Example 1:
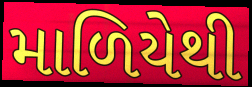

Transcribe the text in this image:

માળિયેથી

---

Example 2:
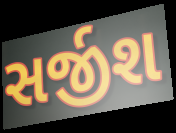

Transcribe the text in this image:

સર્જીશ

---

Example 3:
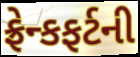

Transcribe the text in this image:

ફ્રેન્કફર્ટની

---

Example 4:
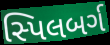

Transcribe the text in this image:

સ્પિલબર્ગ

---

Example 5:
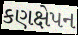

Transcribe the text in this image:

કણક્ષેપન